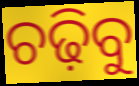
ଚଢ଼ିବୁ